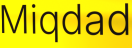
Miqdad